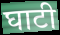
घाटी